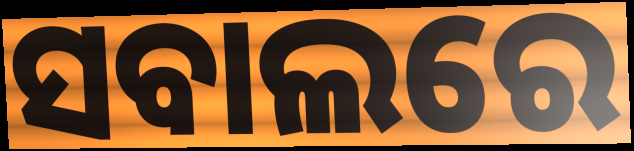
ସବାଲରେ